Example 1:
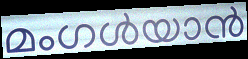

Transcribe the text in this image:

മംഗൾയാൻ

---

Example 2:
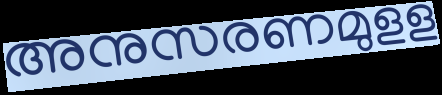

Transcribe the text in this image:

അനുസരണമുളള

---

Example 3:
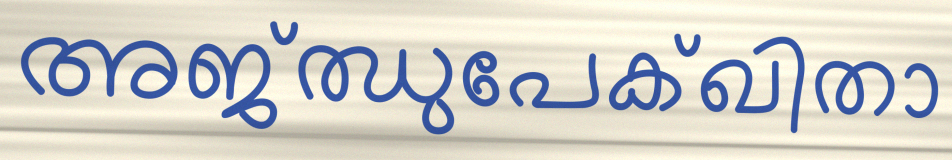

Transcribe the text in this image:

അജ്ഝുപേക്ഖിതാ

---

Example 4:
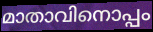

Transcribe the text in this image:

മാതാവിനൊപ്പം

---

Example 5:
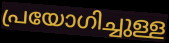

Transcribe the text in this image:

പ്രയോഗിച്ചുള്ള